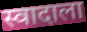
स्वादाला